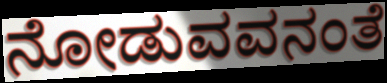
ನೋಡುವವನಂತೆ